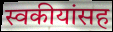
स्वकीयांसह